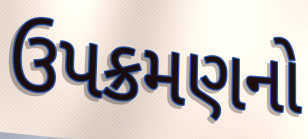
ઉપક્રમણનો